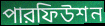
পারফিউশন